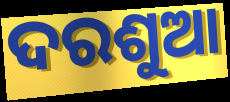
ଦରଶୁଆ